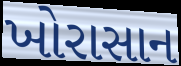
ખોરાસાન